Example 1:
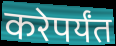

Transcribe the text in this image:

करेपर्यंत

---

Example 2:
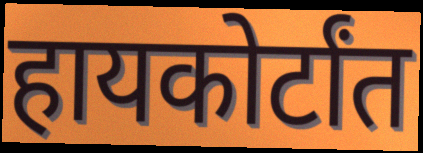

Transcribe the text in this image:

हायकोर्टांत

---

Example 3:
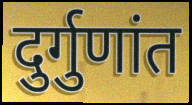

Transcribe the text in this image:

दुर्गुणांत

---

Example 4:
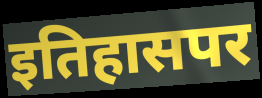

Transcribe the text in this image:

इतिहासपर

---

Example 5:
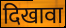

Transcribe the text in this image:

दिखावा